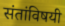
संतांविषयी